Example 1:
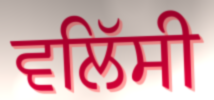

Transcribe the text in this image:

ਵਲਿੱਸੀ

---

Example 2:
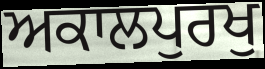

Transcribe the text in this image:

ਅਕਾਲਪੁਰਖੁ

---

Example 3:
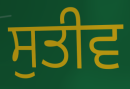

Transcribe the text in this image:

ਸੁਤੀਵ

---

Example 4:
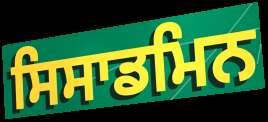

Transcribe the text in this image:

ਸਿਸਾਡਮਿਨ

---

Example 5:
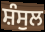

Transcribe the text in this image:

ਸ਼ੰਸੁਲ